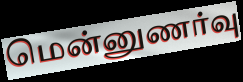
மென்னுணர்வு